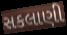
સકલાણી